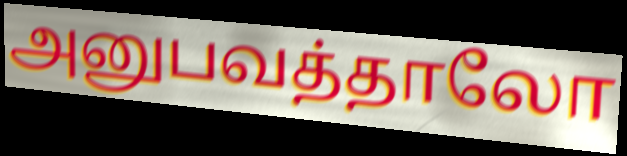
அனுபவத்தாலோ